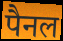
पैनल